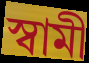
স্বামী